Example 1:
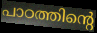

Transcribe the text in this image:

പാഠത്തിന്റെ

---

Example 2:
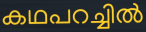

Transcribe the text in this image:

കഥപറച്ചിൽ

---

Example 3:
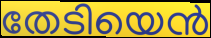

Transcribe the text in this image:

തേടിയെൻ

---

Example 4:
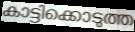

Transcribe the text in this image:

കാട്ടിക്കൊടുത്ത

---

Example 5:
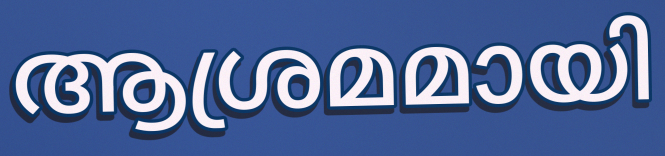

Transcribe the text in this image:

ആശ്രമമായി